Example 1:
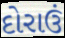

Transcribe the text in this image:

દોરાઉં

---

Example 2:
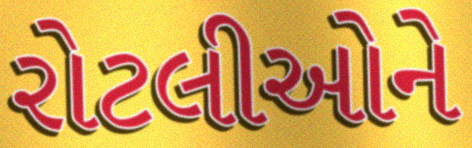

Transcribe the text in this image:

રોટલીઓને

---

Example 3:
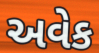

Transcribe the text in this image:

અવેક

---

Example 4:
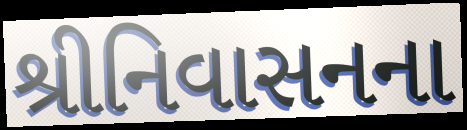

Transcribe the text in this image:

શ્રીનિવાસનના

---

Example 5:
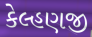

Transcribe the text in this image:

કેલ્હણજી